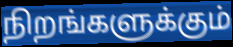
நிறங்களுக்கும்